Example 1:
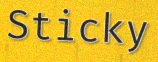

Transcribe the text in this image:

Sticky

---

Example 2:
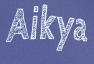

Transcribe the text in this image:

Aikya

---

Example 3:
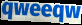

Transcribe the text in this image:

qweeqw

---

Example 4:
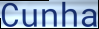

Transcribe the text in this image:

Cunha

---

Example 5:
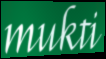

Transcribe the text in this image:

mukti